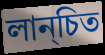
লান্চিত